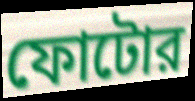
ফোটোর